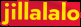
jillalalo